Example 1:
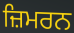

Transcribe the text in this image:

ਜ਼ਿਮਰਨ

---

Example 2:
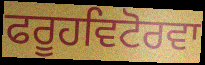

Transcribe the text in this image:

ਫਰੂਹਵਿਟੋਰਵਾ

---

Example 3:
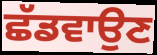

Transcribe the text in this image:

ਛੱਡਵਾਉਣ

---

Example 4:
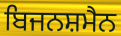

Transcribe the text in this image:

ਬਿਜਨਸ਼ਮੈਨ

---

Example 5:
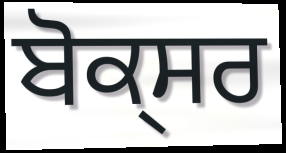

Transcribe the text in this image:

ਬੋਕ੍ਸਰ